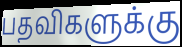
பதவிகளுக்கு